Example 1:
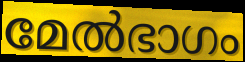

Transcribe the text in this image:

മേൽഭാഗം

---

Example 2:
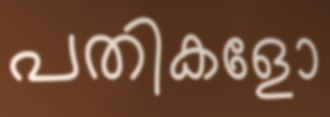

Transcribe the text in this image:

പതികളോ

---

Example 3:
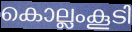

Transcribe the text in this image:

കൊല്ലംകൂടി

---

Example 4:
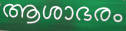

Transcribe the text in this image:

ആശാഭരം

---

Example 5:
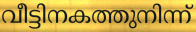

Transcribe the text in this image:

വീട്ടിനകത്തുനിന്ന്